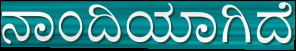
ನಾಂದಿಯಾಗಿದೆ